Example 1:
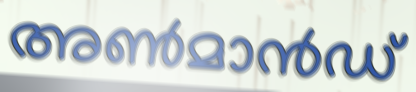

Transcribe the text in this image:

അൺമാൻഡ്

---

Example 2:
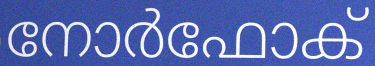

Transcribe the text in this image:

നോർഫോക്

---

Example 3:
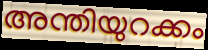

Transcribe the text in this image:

അന്തിയുറക്കം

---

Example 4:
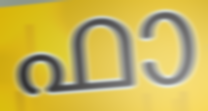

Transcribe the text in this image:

ഫാ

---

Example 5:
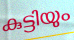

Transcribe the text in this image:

കുട്ടിയും